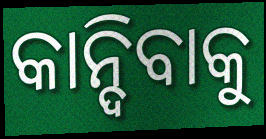
କାନ୍ଦିବାକୁ